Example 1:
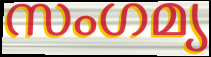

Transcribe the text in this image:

സംഗമ്യ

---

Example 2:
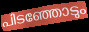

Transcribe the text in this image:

പിടഞ്ഞോടും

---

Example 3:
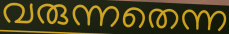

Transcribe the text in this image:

വരുന്നതെന്ന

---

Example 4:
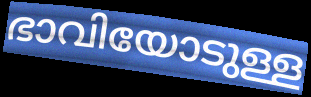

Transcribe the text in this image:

ഭാവിയോടുള്ള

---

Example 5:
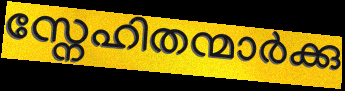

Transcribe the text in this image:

സ്നേഹിതന്മാർക്കു